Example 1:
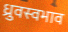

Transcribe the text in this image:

ध्रुवस्वभाव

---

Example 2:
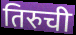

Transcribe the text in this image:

तिरुची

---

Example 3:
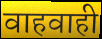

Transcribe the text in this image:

वाहवाही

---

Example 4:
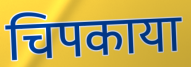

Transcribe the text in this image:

चिपकाया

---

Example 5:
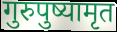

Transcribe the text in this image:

गुरुपुष्यामृत